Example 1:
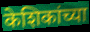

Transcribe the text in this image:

केशिकांच्या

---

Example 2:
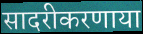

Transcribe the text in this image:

सादरीकरणाया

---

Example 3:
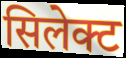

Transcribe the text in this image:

सिलेक्ट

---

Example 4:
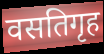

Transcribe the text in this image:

वसतिगृह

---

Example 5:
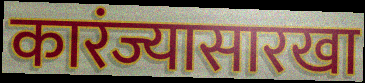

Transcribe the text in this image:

कारंज्यासारखा